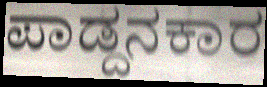
ಪಾಡ್ದನಕಾರ